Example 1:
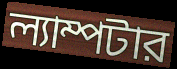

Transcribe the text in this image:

ল্যাম্পটার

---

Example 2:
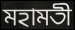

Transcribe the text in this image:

মহামতী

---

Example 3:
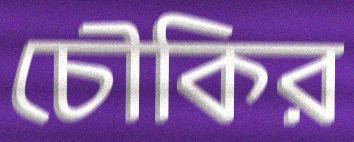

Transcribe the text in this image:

চৌকির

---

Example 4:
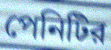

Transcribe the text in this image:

পেনিটির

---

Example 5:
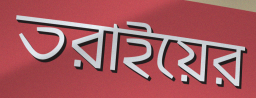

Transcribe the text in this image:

তরাইয়ের